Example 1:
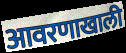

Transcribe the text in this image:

आवरणाखाली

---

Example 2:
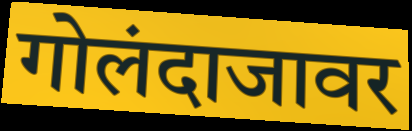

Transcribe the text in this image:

गोलंदाजावर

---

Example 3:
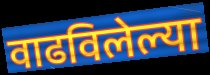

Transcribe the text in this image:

वाढविलेल्या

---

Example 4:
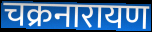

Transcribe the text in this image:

चक्रनारायण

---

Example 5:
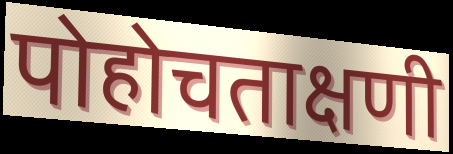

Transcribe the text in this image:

पोहोचताक्षणी